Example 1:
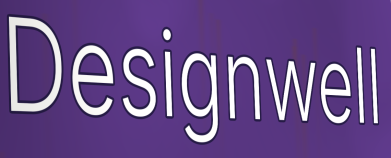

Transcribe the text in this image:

Designwell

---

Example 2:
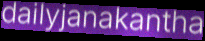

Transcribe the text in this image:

dailyjanakantha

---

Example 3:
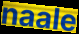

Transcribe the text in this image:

naale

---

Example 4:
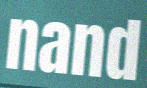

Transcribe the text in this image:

nand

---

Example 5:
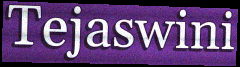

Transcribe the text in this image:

Tejaswini